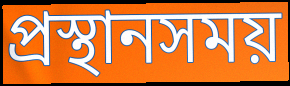
প্রস্থানসময়